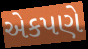
એકપણે